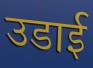
उडाई